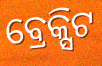
ବ୍ରେକ୍ସିଟ